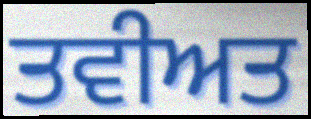
ਤਵੀਅਤ